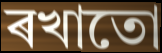
ৰখাতো